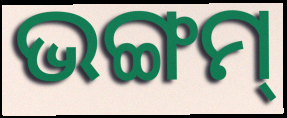
ଭଙ୍ଗମ୍